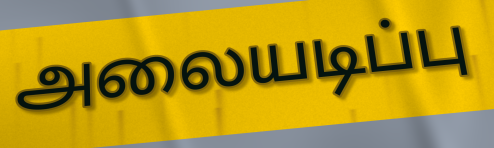
அலையடிப்பு